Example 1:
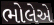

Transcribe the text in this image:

ભોલેએ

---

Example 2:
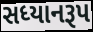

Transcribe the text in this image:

સધ્યાનરૂપ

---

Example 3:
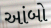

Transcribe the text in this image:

આંબો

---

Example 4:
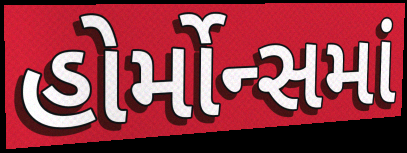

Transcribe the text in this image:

હોર્મોન્સમાં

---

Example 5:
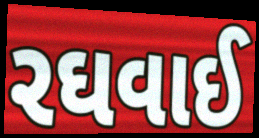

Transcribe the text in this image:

રઘવાઈ